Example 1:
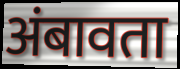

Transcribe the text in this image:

अंबावता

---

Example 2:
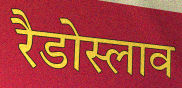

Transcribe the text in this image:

रैडोस्लाव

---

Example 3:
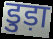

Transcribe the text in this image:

डुड़ा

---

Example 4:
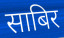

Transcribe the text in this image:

साबिर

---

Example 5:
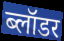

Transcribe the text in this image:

ब्लॉडर